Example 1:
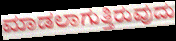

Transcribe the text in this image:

ಮಾಡಲಾಗುತ್ತಿರುವುದು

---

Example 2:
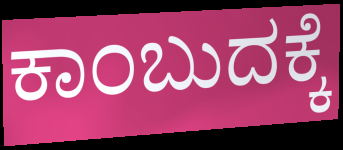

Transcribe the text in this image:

ಕಾಂಬುದಕ್ಕೆ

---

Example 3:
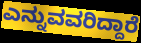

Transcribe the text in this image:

ಎನ್ನುವವರಿದ್ದಾರೆ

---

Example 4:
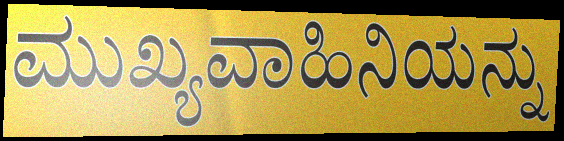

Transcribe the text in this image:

ಮುಖ್ಯವಾಹಿನಿಯನ್ನು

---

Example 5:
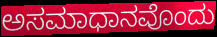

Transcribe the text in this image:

ಅಸಮಾಧಾನವೊಂದು